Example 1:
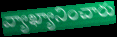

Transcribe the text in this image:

వ్యాఖ్యానించారు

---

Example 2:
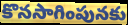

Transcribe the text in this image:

కొనసాగింపునకు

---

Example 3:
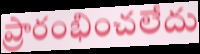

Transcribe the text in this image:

ప్రారంభించలేదు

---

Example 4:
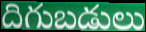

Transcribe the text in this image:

దిగుబడులు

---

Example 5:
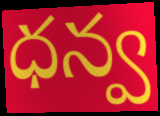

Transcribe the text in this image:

ధన్వ